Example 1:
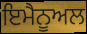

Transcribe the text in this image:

ਇਮੈਨੂਅਲ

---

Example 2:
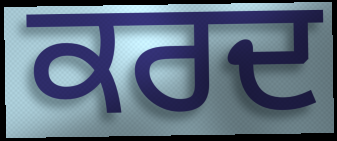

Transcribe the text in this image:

ਕਰਦ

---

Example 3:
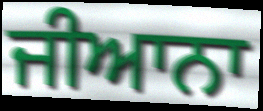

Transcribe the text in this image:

ਜੀਆਨਾ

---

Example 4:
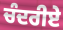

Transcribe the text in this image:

ਚੰਦਰੀਏ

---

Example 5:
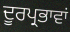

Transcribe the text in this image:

ਦੂਰਪ੍ਰਭਾਵਾਂ